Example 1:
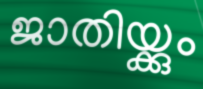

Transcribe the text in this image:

ജാതിയ്ക്കും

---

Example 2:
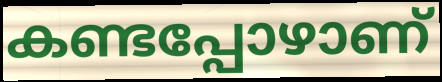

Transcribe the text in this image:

കണ്ടപ്പോഴാണ്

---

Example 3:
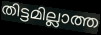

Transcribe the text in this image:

തിട്ടമില്ലാത്ത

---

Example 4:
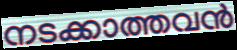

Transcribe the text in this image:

നടക്കാത്തവൻ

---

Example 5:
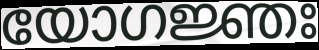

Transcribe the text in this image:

യോഗജ്ഞഃ